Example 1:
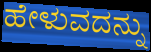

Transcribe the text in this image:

ಹೇಳುವದನ್ನು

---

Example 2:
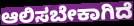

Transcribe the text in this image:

ಆಲಿಸಬೇಕಾಗಿದೆ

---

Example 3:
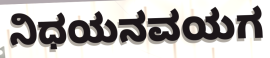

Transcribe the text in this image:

ನಿಧಯನವಯಗ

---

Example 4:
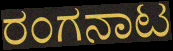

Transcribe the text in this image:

ರಂಗನಾಟ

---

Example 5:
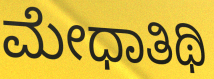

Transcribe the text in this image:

ಮೇಧಾತಿಥಿ